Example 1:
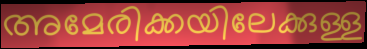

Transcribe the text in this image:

അമേരിക്കയിലേക്കുള്ള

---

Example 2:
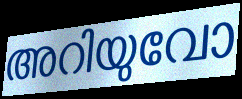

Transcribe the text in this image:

അറിയുവോ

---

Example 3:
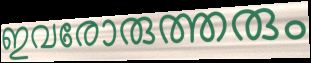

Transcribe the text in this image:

ഇവരോരുത്തരും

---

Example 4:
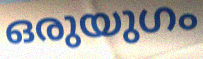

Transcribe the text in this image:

ഒരുയുഗം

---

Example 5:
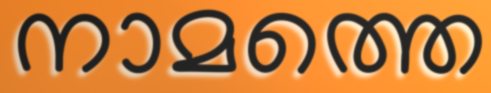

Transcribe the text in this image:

നാമത്തെ